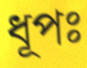
ধূপঃ